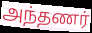
அந்தணர்